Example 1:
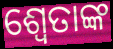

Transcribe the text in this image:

ଶ୍ୱେତାଙ୍କ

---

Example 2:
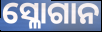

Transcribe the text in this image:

ସ୍ଳୋଗାନ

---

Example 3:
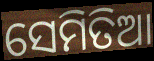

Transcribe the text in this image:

ସେମିତିଆ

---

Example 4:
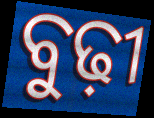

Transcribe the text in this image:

ବୁଢ଼ୀ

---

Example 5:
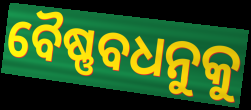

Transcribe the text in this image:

ବୈଷ୍ଣବଧନୁକୁ